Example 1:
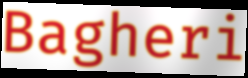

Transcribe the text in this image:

Bagheri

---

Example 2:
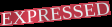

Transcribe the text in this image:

EXPRESSED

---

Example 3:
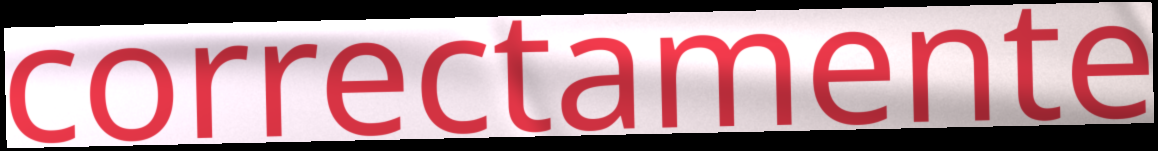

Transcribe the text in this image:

correctamente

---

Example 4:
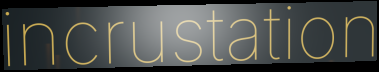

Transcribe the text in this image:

incrustation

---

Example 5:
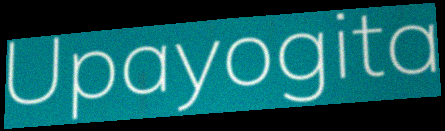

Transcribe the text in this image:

Upayogita